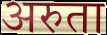
अरुता